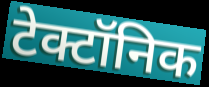
टेक्टॉनिक